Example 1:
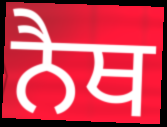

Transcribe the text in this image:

ਨੈਥ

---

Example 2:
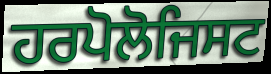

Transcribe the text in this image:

ਹਰਪੋਲੋਜਿਸਟ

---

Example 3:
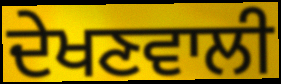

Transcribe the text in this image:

ਦੇਖਣਵਾਲੀ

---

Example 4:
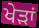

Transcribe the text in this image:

ਖੇੜਾਂ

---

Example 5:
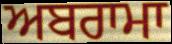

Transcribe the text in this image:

ਅਬਰਾਮਾ